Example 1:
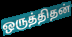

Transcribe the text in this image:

ஒருத்திதன்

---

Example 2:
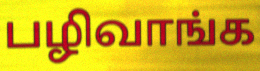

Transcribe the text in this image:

பழிவாங்க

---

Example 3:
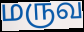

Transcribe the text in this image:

மருவ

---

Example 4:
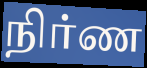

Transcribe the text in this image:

நிர்ண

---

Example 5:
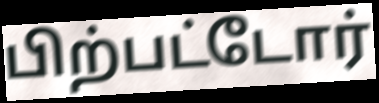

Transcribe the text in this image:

பிற்பட்டோர்